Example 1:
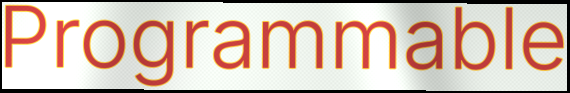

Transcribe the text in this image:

Programmable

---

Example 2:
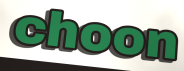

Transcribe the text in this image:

choon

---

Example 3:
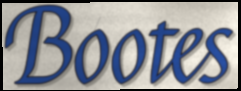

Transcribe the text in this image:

Bootes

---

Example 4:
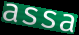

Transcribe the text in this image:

assa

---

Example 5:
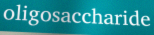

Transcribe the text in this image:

oligosaccharide